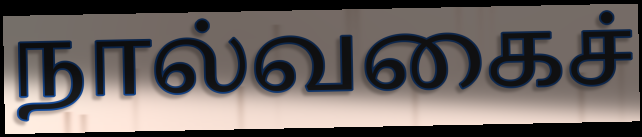
நால்வகைச்